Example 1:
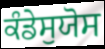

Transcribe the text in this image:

ਕੰਡੇਸੁਯੋਸ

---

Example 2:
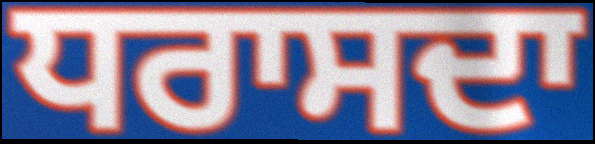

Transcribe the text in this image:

ਧਰਾਸਦਾ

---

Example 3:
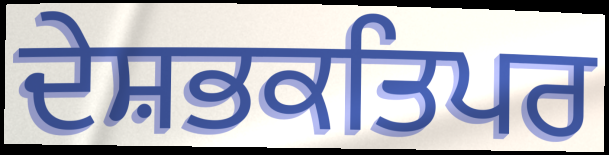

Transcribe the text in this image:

ਦੇਸ਼ਭਕਤਿਪਰ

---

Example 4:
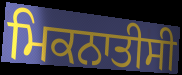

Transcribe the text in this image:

ਮਿਕਨਾਤੀਸੀ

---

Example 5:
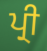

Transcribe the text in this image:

ਪ੍ਰੀ